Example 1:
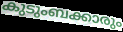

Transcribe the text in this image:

കുടുംബക്കാരും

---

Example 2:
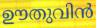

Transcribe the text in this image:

ഊതുവിൻ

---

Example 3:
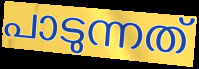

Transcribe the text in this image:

പാടുന്നത്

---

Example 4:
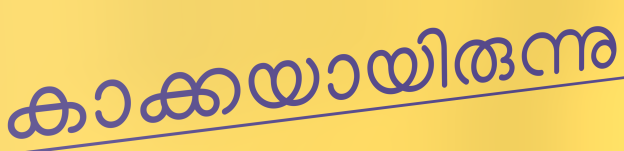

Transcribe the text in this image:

കാക്കയായിരുന്നു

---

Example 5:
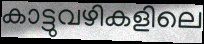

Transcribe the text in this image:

കാട്ടുവഴികളിലെ